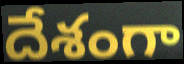
దేశంగా